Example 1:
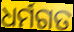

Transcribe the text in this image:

ଧର୍ମଗତ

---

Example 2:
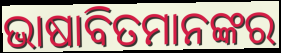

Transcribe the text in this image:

ଭାଷାବିତମାନଙ୍କର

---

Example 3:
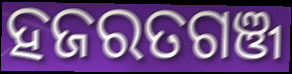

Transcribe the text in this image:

ହଜରତଗଞ୍ଜ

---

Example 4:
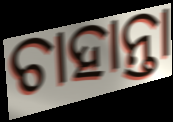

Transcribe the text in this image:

ଚାହାନ୍ତା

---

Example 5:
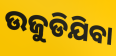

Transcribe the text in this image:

ଉଜୁଡିଯିବା